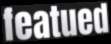
featued